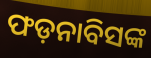
ଫଡ଼ନାବିସଙ୍କ